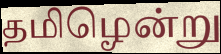
தமிழென்று